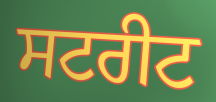
ਸਟਰੀਟ